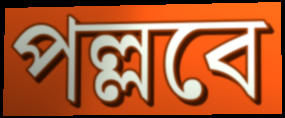
পল্লবে